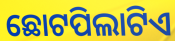
ଛୋଟପିଲାଟିଏ